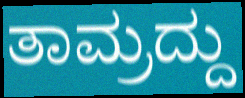
ತಾಮ್ರದ್ದು